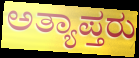
ಅತ್ಯಾಪ್ತರು